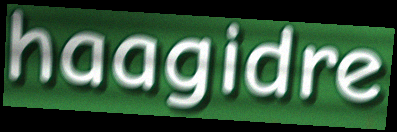
haagidre